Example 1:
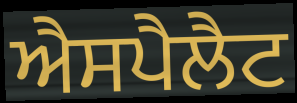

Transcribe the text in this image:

ਐਸਪੈਲੈਟ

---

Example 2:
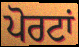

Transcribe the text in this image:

ਪੋਰਟਾਂ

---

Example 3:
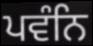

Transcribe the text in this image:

ਪਵੰਨਿ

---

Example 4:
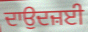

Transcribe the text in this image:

ਦਾਉਦਜ਼ਈ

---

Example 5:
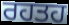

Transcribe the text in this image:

ਰਹਤਹ